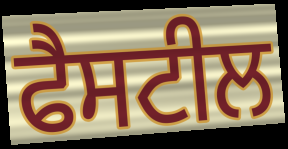
ਫੈਸਟੀਲ